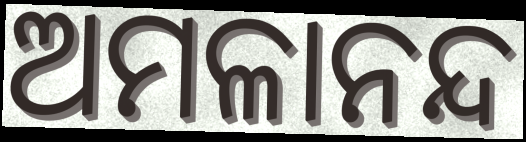
ଅମଳାନନ୍ଦ